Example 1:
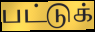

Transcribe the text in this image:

பட்டுக்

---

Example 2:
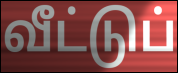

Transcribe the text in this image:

வீட்டுப்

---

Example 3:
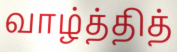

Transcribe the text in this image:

வாழ்த்தித்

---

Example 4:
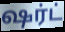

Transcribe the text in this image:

ஷர்ட்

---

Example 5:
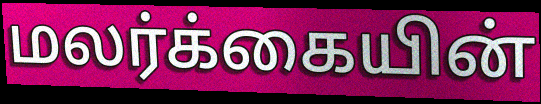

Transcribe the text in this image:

மலர்க்கையின்